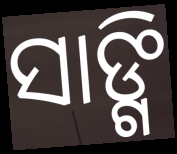
ସାଙ୍ଗି